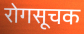
रोगसूचक